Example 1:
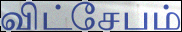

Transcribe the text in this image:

விட்சேபம்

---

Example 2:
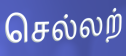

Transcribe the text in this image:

செல்லற்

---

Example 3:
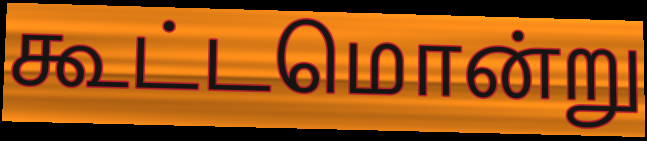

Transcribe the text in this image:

கூட்டமொன்று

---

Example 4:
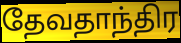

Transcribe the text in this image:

தேவதாந்திர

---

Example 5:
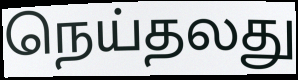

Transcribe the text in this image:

நெய்தலது